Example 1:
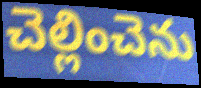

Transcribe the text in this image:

చెల్లించెను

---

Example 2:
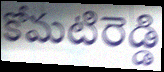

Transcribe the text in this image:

కోమటిరెడ్డి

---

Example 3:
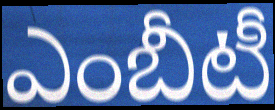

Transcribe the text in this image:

ఎంబీటీ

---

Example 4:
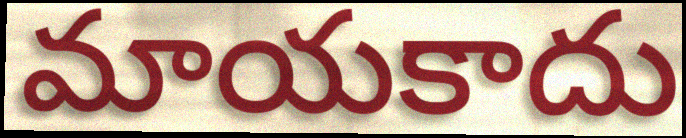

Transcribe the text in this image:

మాయకాదు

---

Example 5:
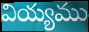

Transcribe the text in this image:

వియ్యము